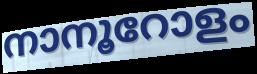
നാനൂറോളം